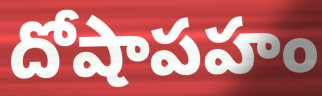
దోషాపహం